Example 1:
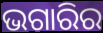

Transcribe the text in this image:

ଭଗାରିର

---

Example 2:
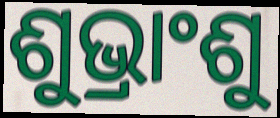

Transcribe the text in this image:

ଶୁଭ୍ରାଂଶୁ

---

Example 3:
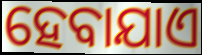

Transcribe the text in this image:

ହେବାଯାଏ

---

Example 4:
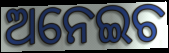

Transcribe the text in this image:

ଅନେଇଚ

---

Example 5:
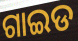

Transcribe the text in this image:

ଗାଇଡ